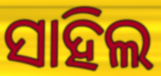
ସାହିଲ